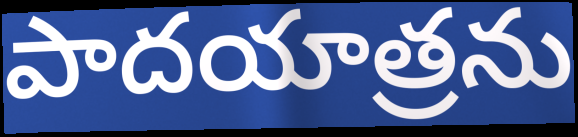
పాదయాత్రను